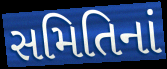
સમિતિનાં